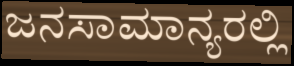
ಜನಸಾಮಾನ್ಯರಲ್ಲಿ